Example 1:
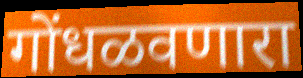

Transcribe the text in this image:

गोंधळवणारा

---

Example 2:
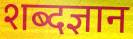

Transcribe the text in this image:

शब्दज्ञान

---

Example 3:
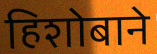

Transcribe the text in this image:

हिशोबाने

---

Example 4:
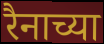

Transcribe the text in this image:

रैनाच्या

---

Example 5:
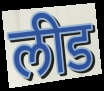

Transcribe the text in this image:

लीड